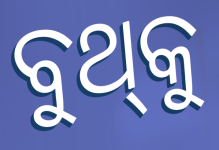
ବୁଥ୍‌କୁ